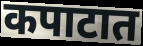
कपाटात